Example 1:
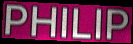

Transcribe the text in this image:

PHILIP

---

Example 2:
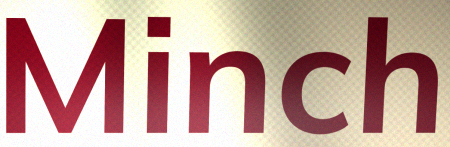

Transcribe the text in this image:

Minch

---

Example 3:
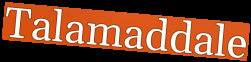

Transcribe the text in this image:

Talamaddale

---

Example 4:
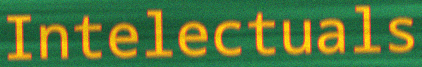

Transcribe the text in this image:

Intelectuals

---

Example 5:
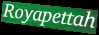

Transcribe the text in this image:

Royapettah